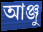
আঞ্জু